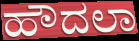
ಹೌದಲಾ